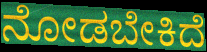
ನೋಡಬೇಕಿದೆ